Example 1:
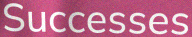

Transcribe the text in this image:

Successes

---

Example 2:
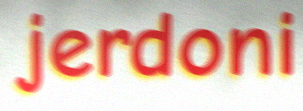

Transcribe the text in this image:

jerdoni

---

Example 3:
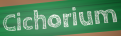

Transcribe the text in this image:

Cichorium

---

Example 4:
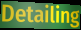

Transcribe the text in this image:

Detailing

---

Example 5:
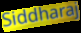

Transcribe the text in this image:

Siddharaj